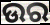
ଉର